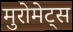
मुरोमेट्स